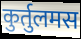
कुर्तुलमस